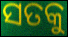
ସତକୁ